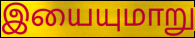
இயையுமாறு